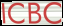
ICBC